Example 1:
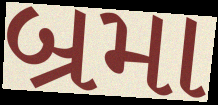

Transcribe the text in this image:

બ્રમા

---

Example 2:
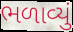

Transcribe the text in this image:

ભળાવ્યું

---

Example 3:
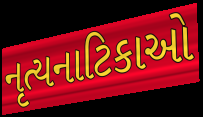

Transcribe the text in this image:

નૃત્યનાટિકાઓ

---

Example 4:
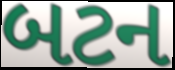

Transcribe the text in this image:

બટન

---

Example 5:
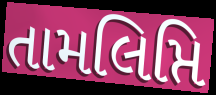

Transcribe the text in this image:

તામલિપ્તિ